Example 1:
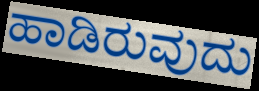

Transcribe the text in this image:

ಹಾಡಿರುವುದು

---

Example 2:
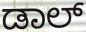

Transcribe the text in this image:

ಡಾಲ್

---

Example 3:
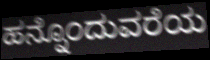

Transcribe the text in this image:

ಹನ್ನೊಂದುವರೆಯ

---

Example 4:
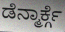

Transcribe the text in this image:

ಡೆನ್ಮಾರ್ಕ್ಗೆ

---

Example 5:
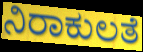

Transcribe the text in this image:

ನಿರಾಕುಲತೆ